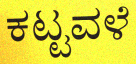
ಕಟ್ಟವಳೆ